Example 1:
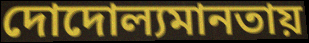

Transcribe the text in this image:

দোদোল্যমানতায়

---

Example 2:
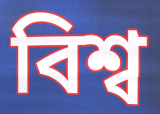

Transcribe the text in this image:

বিশ্ব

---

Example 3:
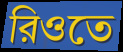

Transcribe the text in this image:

রিওতে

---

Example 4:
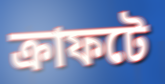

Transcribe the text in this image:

ক্রাফটে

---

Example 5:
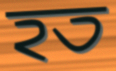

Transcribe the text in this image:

হত